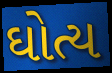
ઘોત્ય